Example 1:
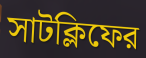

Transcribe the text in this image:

সাটক্লিফের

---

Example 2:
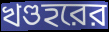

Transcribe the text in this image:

খণ্ডহরের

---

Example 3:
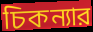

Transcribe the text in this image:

চিকন্যার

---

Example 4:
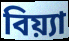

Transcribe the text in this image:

বিয়্যা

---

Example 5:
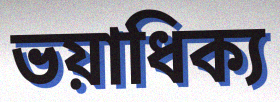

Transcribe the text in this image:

ভয়াধিক্য